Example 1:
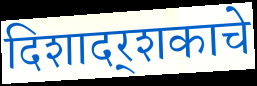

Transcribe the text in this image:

दिशादर्शकाचे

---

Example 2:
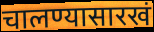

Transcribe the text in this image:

चालण्यासारखं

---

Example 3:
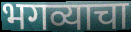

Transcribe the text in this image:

भगव्याचा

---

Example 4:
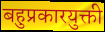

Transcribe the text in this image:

बहुप्रकारयुक्ती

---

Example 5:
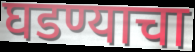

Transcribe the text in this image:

घडण्याचा